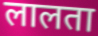
लालता